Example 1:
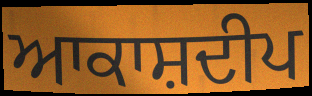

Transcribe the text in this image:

ਆਕਾਸ਼ਦੀਪ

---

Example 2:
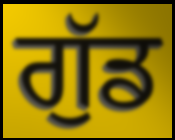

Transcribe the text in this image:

ਗੁੱਡ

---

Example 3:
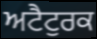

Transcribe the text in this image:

ਅਟੈਟੁਰਕ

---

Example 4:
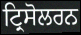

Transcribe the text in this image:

ਟ੍ਰਿਸੋਲਰਨ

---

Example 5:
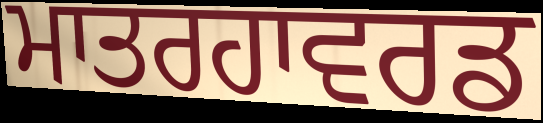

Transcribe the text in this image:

ਮਾਤਰਹਾਵਰਡ